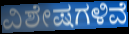
ವಿಶೇಷಗಳಿವೆ